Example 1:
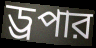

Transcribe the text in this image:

ড্রপার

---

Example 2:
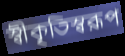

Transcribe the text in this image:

স্বীকৃতিস্বরূপ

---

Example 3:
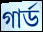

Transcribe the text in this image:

গার্ড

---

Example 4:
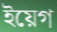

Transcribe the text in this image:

ইয়েগ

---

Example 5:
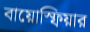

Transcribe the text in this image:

বায়োস্ফিয়ার